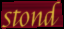
stond